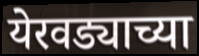
येरवड्याच्या